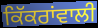
ਕਿੱਕਰਾਂਵਾਲੀ